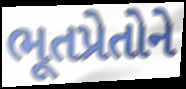
ભૂતપ્રેતોને